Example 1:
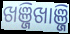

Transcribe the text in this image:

ଖଞ୍ଜିଖାଞ୍ଜି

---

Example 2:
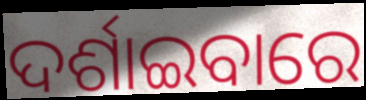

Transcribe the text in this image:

ଦର୍ଶାଇବାରେ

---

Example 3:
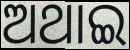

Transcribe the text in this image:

ଅଥାଇ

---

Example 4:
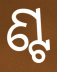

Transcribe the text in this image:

ଣ୍ଟ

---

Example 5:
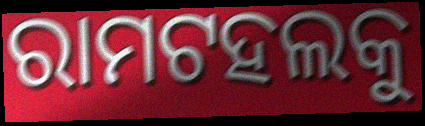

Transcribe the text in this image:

ରାମଟହଲକୁ